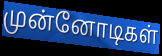
முன்னோடிகள்